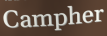
Campher